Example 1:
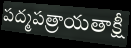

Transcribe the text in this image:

పద్మపత్రాయతాక్షీ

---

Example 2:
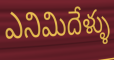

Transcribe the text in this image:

ఎనిమిదేళ్ళు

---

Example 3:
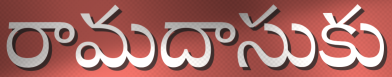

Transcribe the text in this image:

రామదాసుకు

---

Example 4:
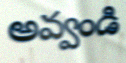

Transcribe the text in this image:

అవ్వండి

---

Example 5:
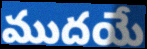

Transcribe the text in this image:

ముదయే